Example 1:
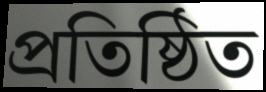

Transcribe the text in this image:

প্ৰতিষ্ঠিত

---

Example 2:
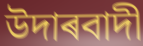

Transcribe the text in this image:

উদাৰবাদী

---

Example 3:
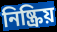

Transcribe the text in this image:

নিষ্ক্ৰিয়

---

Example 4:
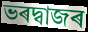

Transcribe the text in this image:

ভৰদ্বাজৰ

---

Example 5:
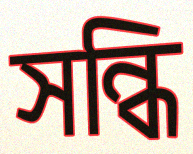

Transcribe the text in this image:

সন্ধি